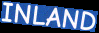
INLAND